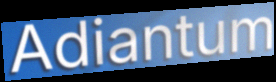
Adiantum